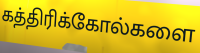
கத்திரிக்கோல்களை